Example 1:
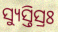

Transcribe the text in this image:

ସ୍ୟୁସ୍ତିସ୍ରଃ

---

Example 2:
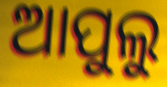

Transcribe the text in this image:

ଆପୁଲୁ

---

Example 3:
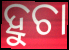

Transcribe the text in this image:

ହୁଚା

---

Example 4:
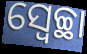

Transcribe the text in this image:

ସ୍ବେଚ୍ଛା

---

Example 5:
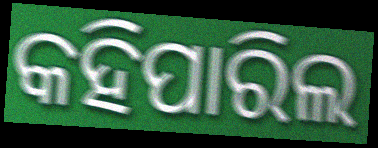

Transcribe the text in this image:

କହିପାରିଲ